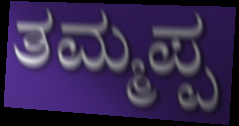
ತಮ್ಮಪ್ಪ